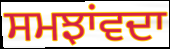
ਸਮਝਾਂਵਦਾ